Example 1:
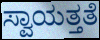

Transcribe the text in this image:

ಸ್ವಾಯತ್ತತೆ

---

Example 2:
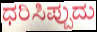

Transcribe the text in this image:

ಧರಿಸಿಪ್ಪುದು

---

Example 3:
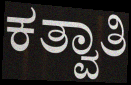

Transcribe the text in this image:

ಕತ್ವಾತಿ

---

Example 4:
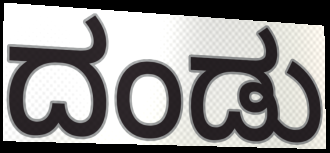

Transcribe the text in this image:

ದಂಡು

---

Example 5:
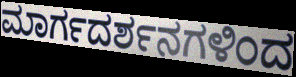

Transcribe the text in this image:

ಮಾರ್ಗದರ್ಶನಗಳಿಂದ